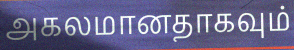
அகலமானதாகவும்